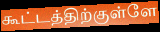
கூட்டத்திற்குள்ளே